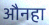
औनहा